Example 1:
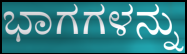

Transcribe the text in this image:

ಭಾಗಗಳನ್ನು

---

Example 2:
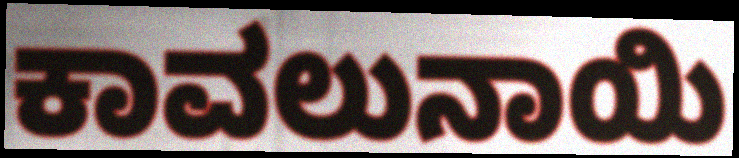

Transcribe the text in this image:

ಕಾವಲುನಾಯಿ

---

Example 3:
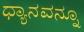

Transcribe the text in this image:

ಧ್ಯಾನವನ್ನೂ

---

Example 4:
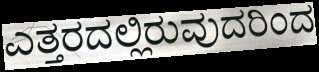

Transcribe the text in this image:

ಎತ್ತರದಲ್ಲಿರುವುದರಿಂದ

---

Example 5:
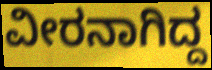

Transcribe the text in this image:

ವೀರನಾಗಿದ್ದ